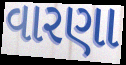
વારણા